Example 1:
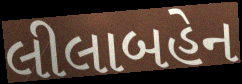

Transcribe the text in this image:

લીલાબહેન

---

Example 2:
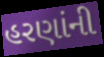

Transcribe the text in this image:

હરણાંની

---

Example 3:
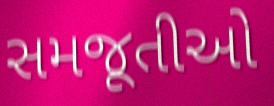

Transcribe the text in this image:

સમજૂતીઓ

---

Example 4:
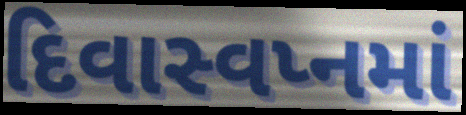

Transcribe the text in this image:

દિવાસ્વપ્નમાં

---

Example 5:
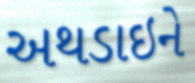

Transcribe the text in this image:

અથડાઇને